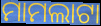
ମାମଲାଟା